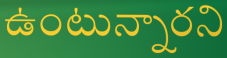
ఉంటున్నారని